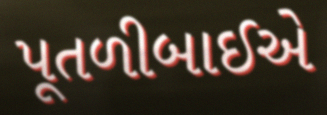
પૂતળીબાઈએ